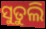
ସୁତୁଲି